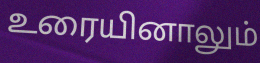
உரையினாலும்